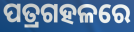
ପତ୍ରଗହଳରେ